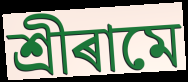
শ্ৰীৰামে